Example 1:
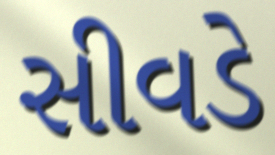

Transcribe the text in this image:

સીવડે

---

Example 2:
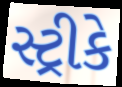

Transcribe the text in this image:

સ્ટ્રીકે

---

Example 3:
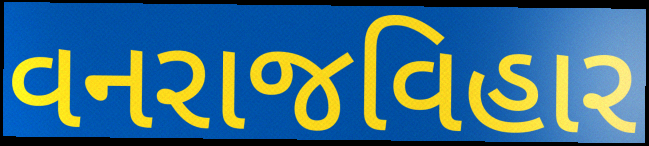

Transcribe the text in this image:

વનરાજવિહાર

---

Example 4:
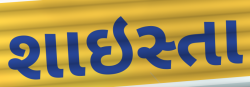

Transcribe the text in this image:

શાઇસ્તા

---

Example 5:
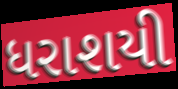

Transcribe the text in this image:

ધરાશયી